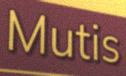
Mutis